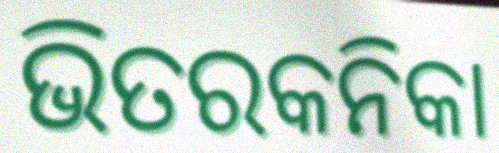
ଭିତରକନିକା